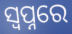
ସ୍ୱପ୍ନରେ